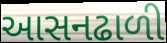
આસનઢાળી